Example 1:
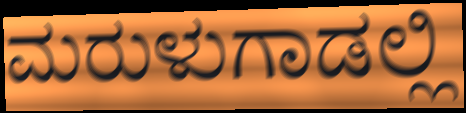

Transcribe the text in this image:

ಮರುಳುಗಾಡಲ್ಲಿ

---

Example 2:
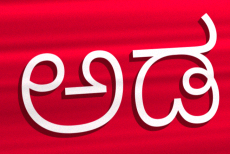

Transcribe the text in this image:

ಅಡ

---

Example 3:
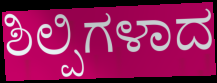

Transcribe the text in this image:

ಶಿಲ್ಪಿಗಳಾದ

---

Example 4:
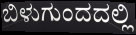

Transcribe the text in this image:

ಬಿಳುಗುಂದದಲ್ಲಿ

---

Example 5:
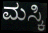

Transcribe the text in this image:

ಮಸ್ಕಿ